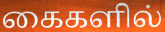
கைகளில்